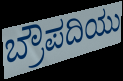
ಬ್ರೌಪದಿಯು